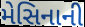
મેસિનાની